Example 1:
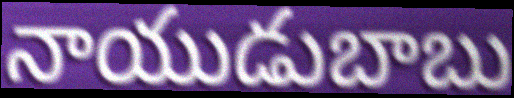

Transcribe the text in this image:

నాయుడుబాబు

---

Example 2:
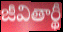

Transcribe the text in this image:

జీవితార్థీ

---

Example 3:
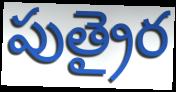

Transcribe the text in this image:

పుత్రైర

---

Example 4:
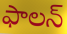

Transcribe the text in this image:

ఫాలన్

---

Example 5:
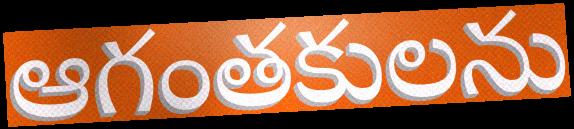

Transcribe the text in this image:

ఆగంతకులను